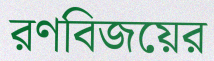
রণবিজয়ের